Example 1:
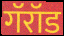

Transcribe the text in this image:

गॅरॉड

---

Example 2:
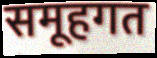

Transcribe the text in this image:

समूहगत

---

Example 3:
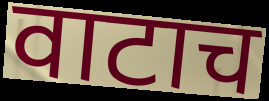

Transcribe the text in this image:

वाटाच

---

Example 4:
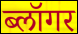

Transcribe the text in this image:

ब्लॉगर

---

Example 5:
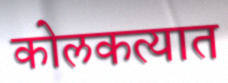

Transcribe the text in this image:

कोलकत्यात